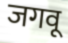
जगवू